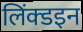
लिंक्डइन